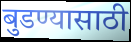
बुडण्यासाठी